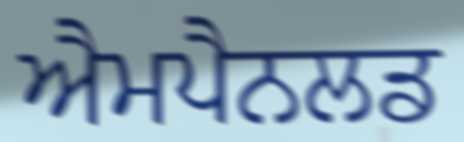
ਐਮਪੈਨਲਡ